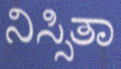
ನಿಸ್ಸಿತಾ